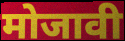
मोजावी